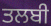
ਤਲਬੀ